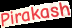
Pirakash